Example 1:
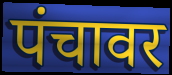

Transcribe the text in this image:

पंचावर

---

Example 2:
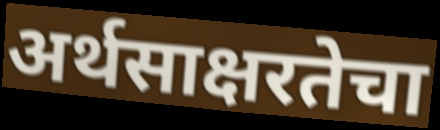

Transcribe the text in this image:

अर्थसाक्षरतेचा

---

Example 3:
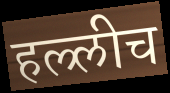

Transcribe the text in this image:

हल्लीच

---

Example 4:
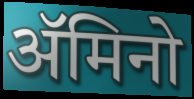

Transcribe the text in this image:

ॲमिनो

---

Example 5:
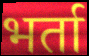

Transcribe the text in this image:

भर्ता